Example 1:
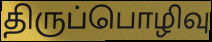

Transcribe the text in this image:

திருப்பொழிவு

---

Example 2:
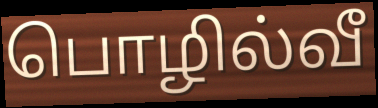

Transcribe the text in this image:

பொழில்வீ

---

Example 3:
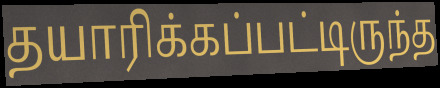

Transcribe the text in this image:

தயாரிக்கப்பட்டிருந்த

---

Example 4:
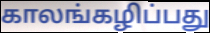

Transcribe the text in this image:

காலங்கழிப்பது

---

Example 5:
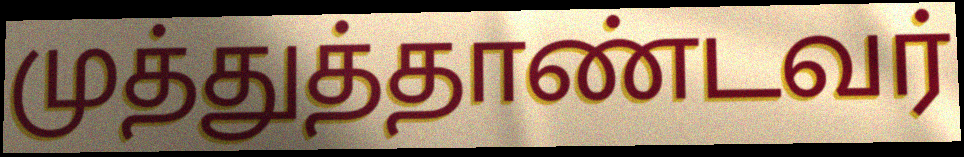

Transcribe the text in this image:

முத்துத்தாண்டவர்